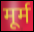
मूर्म